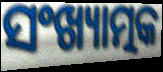
ସଂଖ୍ୟାତ୍ମକ